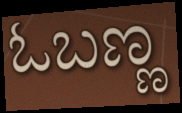
ಓಬಣ್ಣ